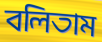
বলিতাম